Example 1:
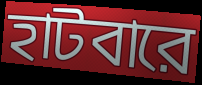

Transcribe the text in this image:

হাটবারে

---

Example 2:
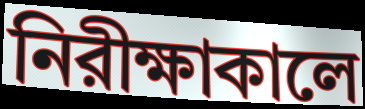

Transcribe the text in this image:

নিরীক্ষাকালে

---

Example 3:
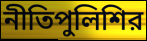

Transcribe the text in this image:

নীতিপুলিশির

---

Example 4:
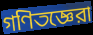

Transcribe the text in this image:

গণিতজ্ঞেরা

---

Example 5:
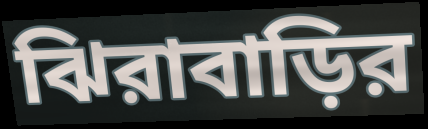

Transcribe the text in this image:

ঝিরাবাড়ির